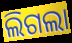
ଲିଗଲା